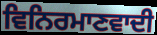
ਵਿਨਿਰਮਾਣਵਾਦੀ